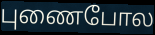
புணைபோல